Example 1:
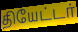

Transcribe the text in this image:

தியேட்டர்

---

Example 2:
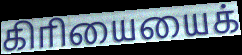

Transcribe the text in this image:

கிரியையைக்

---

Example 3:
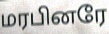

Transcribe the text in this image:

மரபினரே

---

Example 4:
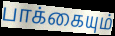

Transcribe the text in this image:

பாக்கையும்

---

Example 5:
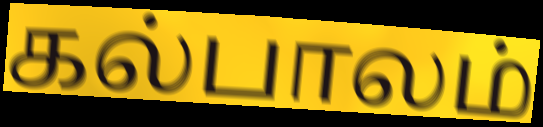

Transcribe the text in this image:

கல்பாலம்